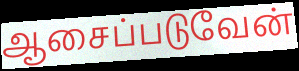
ஆசைப்படுவேன்